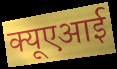
क्यूएआई